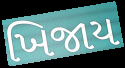
ખિજાય